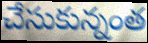
చేసుకున్నంత